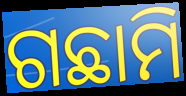
ଗଛାମି